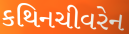
કથિનચીવરેન